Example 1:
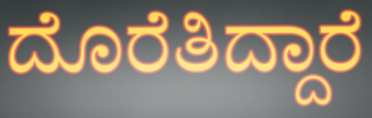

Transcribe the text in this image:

ದೊರೆತಿದ್ದಾರೆ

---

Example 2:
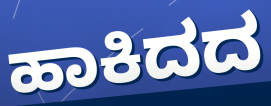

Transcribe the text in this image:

ಹಾಕಿದದ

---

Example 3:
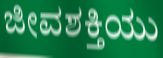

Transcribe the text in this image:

ಜೀವಶಕ್ತಿಯು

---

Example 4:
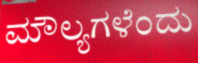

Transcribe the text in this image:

ಮೌಲ್ಯಗಳೆಂದು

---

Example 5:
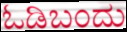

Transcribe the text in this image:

ಓಡಿಬಂದು